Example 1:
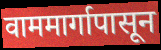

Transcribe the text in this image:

वाममार्गापासून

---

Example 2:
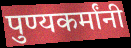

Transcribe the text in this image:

पुण्यकर्मांनी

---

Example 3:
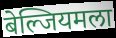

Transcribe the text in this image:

बेल्जियमला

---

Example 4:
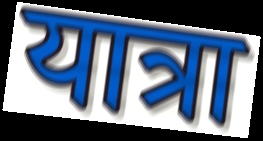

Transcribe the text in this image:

यात्रा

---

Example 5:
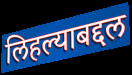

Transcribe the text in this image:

लिहल्याबद्दल